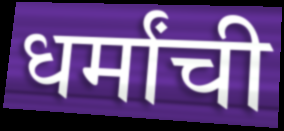
धर्मांची